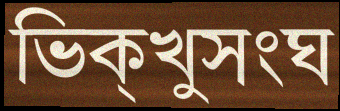
ভিক্খুসংঘ